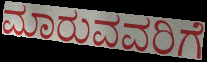
ಮಾರುವವರಿಗೆ